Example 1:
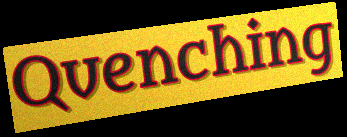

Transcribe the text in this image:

Quenching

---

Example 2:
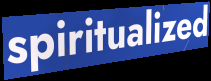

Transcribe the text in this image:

spiritualized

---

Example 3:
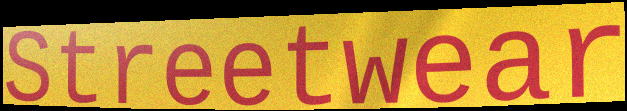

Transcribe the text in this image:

Streetwear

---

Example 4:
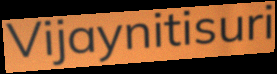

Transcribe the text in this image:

Vijaynitisuri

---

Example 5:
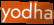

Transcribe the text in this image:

yodha